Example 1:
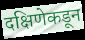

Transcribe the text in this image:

दक्षिणेकडून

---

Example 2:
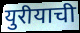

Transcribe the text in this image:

युरीयाची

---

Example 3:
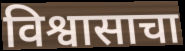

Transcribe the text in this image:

विश्वासाचा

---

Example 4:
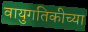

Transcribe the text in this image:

वायुगतिकीच्या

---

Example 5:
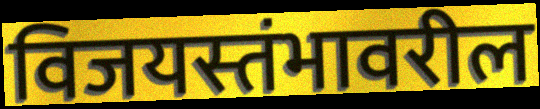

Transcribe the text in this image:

विजयस्तंभावरील